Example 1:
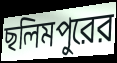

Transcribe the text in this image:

ছলিমপুরের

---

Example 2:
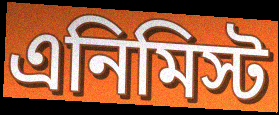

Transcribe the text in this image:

এনিমিস্ট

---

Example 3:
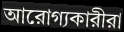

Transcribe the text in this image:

আরোগ্যকারীরা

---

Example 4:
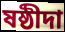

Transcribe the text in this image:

ষষ্ঠীদা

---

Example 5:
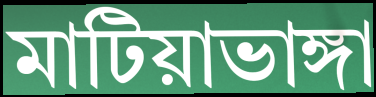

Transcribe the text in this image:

মাটিয়াভাঙ্গা